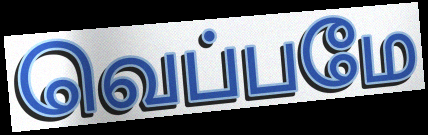
வெப்பமே